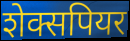
शेक्सपियर